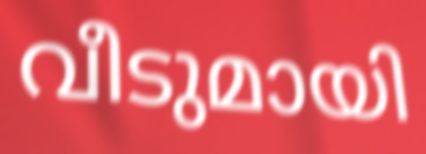
വീടുമായി